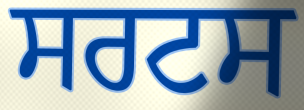
ਸਰਟਸ